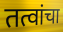
तत्वांचा